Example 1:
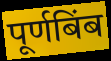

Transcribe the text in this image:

पूर्णबिंब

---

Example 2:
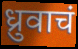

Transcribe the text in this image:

ध्रुवाचं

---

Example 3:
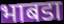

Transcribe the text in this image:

भाबडा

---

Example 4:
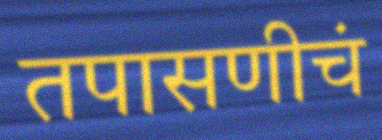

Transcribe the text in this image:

तपासणीचं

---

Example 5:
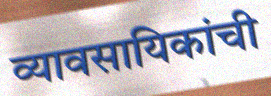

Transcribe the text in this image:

व्यावसायिकांची